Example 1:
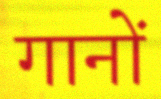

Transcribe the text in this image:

गानों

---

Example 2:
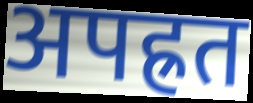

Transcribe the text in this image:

अपह्रत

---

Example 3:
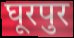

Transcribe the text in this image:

घूरपुर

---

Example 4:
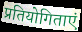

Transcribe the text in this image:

प्रतियोगिताएं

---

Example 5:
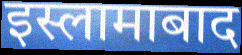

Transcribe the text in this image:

इस्लामाबाद